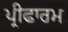
ਪ੍ਰੀਫਾਰਮ